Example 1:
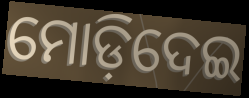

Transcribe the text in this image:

ମୋଡ଼ିଦେଇ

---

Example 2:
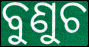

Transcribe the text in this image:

ବୁଣୁଚ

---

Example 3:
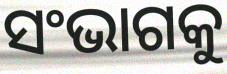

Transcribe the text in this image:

ସଂଭାଗକୁ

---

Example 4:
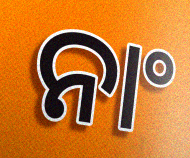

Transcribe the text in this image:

ନାଂ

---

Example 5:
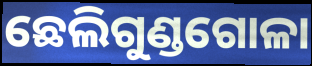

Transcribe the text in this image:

ଛେଲିଗୁଣ୍ଡଗୋଳା